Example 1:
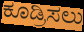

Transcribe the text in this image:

ಕೂಡ್ರಿಸಲು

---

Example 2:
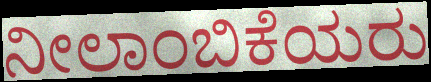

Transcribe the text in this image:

ನೀಲಾಂಬಿಕೆಯರು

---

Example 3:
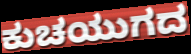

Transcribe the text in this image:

ಕುಚಯುಗದ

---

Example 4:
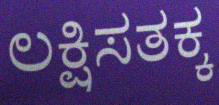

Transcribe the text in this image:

ಲಕ್ಷಿಸತಕ್ಕ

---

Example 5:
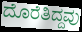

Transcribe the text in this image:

ದೊರೆತಿದ್ದವು